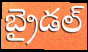
బ్రైడల్